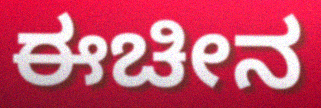
ಈಚೀನ